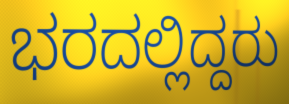
ಭರದಲ್ಲಿದ್ದರು